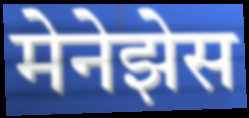
मेनेझेस